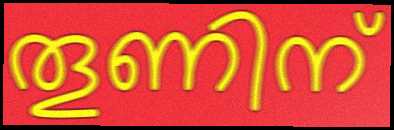
തൂണിന്